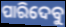
ପାରିଦେବୁ